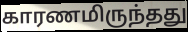
காரணமிருந்தது